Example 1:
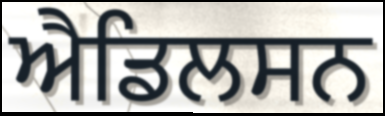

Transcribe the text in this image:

ਐਡਿਲਸਨ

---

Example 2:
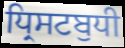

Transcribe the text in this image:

ਧ੍ਰਿਸਟਬੁਧੀ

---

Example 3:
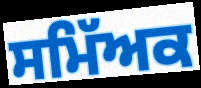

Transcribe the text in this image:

ਸਮਿੱਅਕ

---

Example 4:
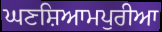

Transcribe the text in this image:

ਘਣਸ਼ਿਆਮਪੁਰੀਆ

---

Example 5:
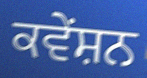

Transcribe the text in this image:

ਕਵੇਂਸ਼ਨ